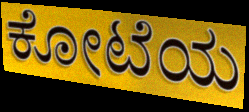
ಕೋಟೆಯ